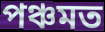
পঞ্চমত